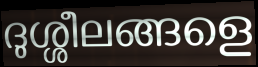
ദുശ്ശീലങ്ങളെ